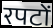
रपटों